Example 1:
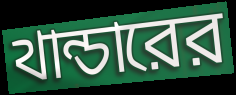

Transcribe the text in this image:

থান্ডারের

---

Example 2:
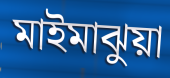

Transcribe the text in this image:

মাইমাঝুয়া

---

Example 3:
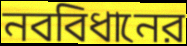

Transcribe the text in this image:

নববিধানের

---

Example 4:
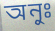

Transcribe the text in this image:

অনুঃ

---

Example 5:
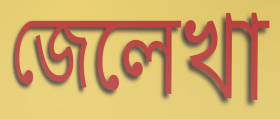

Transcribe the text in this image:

জেলেখা